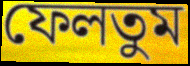
ফেলতুম